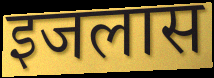
इजलास